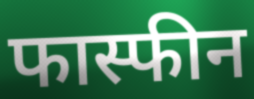
फास्फीन